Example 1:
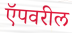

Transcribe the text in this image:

ऍपवरील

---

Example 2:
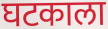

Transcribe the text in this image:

घटकाला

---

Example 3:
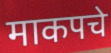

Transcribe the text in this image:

माकपचे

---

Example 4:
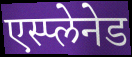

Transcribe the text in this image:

एस्प्लेनेड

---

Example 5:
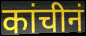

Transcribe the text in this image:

कांचीनं